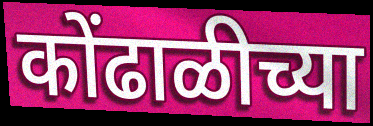
कोंढाळीच्या